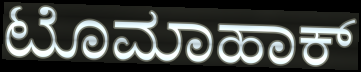
ಟೊಮಾಹಾಕ್